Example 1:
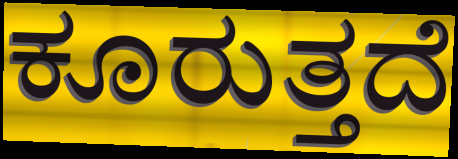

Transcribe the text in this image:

ಕೂರುತ್ತದೆ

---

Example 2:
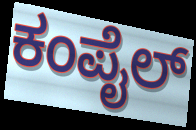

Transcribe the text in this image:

ಕಂಪೈಲ್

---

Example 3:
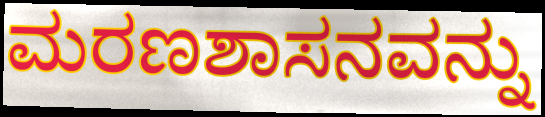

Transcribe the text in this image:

ಮರಣಶಾಸನವನ್ನು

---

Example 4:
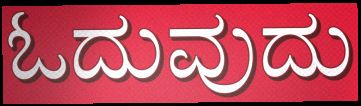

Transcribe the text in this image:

ಓದುವುದು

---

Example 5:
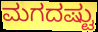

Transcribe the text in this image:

ಮಗದಷ್ಟು